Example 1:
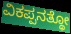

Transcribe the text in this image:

ವಿಕಪ್ಪನತ್ಥೋ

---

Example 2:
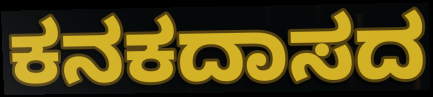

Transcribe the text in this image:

ಕನಕದಾಸದ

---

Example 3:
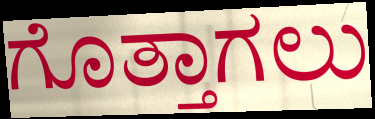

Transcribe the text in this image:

ಗೊತ್ತಾಗಲು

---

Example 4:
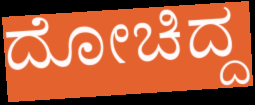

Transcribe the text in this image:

ದೋಚಿದ್ದ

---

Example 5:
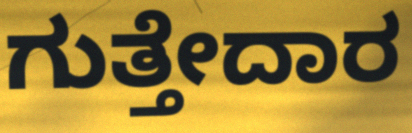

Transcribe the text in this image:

ಗುತ್ತೇದಾರ